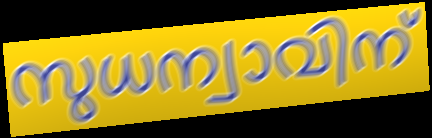
സുധന്വാവിന്